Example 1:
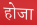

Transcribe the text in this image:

होजा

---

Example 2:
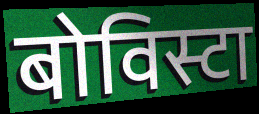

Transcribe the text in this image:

बोविस्टा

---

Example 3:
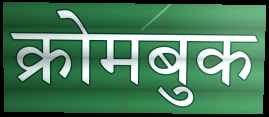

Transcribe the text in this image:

क्रोमबुक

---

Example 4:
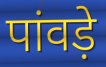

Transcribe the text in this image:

पांवड़े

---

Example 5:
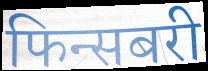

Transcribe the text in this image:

फिन्सबरी